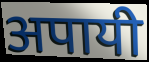
अपायी